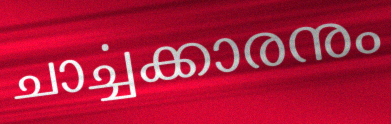
ചാൎച്ചക്കാരനും